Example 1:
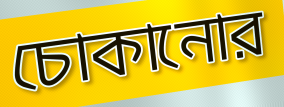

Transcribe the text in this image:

চোকানোর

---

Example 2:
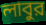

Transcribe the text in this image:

লাবুর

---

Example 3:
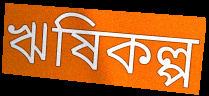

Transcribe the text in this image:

ঋষিকল্প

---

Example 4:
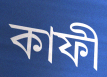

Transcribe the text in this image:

কাফী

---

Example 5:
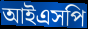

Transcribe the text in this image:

আইএসপি